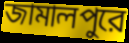
জামালপুরে